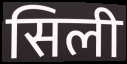
सिली